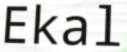
Ekal